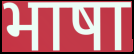
भाषा